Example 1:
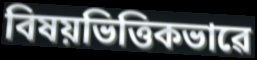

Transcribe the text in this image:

বিষয়ভিত্তিকভাৱে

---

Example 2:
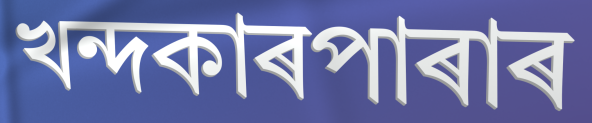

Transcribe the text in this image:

খন্দকাৰপাৰাৰ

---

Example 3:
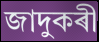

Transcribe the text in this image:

জাদুকৰী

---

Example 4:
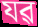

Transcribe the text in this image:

যৱ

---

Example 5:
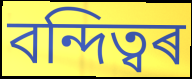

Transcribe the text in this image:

বন্দিত্বৰ